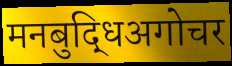
मनबुद्धिअगोचर